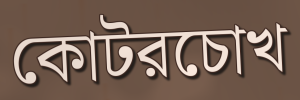
কোটরচোখ